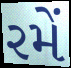
રમેં